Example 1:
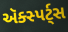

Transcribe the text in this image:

ઍક્સ્પર્ટ્સ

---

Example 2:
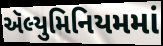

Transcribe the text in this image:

ઍલ્યુમિનિયમમાં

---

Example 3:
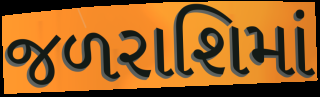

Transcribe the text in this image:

જળરાશિમાં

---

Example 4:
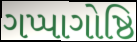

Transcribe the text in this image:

ગપ્પાગોષ્ઠિ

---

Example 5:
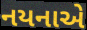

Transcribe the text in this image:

નયનાએ